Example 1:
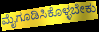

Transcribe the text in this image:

ಮೈಗೂಡಿಸಿಕೊಳ್ಳಬೇಕು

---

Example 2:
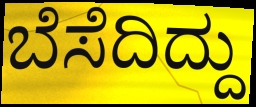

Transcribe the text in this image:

ಬೆಸೆದಿದ್ದು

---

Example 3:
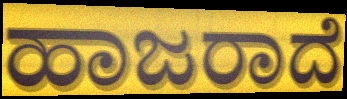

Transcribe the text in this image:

ಹಾಜರಾದೆ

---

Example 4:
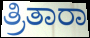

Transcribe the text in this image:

ತ್ರಿತಾರಾ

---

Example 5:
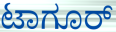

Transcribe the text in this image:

ಟಾಗೂರ್